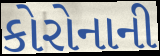
કોરોનાની